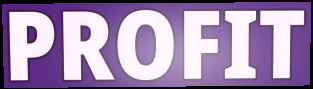
PROFIT